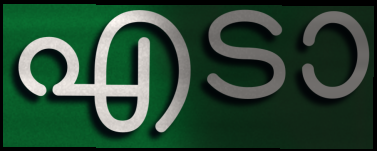
എടാ